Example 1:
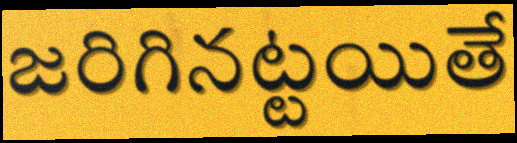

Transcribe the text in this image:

జరిగినట్టయితే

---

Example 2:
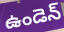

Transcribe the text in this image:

ఉండెన్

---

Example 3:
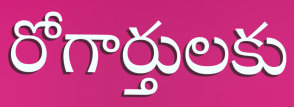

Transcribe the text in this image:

రోగార్తులకు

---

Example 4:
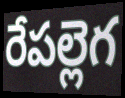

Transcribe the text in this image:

రేపల్లెగ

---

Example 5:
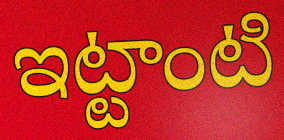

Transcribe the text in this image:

ఇట్టాంటి